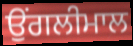
ਉਂਗਲੀਮਾਲ